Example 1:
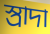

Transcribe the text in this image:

স্ত্রাদা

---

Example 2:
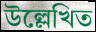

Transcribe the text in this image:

উল্লেখিত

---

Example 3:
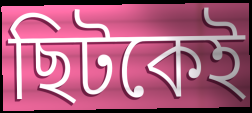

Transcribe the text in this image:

ছিটকেই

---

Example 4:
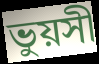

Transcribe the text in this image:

ভুয়সী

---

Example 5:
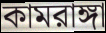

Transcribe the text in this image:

কামরাঙ্গা